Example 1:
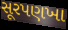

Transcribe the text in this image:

સૂરપણખા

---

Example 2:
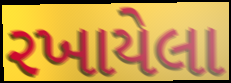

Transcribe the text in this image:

રખાયેલા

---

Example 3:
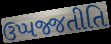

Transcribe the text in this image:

ઉપ્પજ્જતીતિ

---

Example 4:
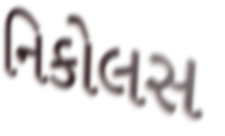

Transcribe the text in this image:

નિકોલસ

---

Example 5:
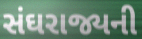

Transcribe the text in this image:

સંઘરાજ્યની